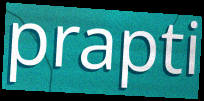
prapti